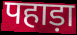
पहाड़ा